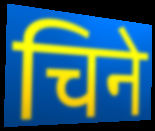
चिने